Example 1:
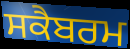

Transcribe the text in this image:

ਸਕੈਬਰਮ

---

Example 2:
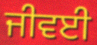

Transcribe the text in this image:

ਜੀਵਈ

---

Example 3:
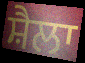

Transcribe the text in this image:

ਸ਼ੈਲਾ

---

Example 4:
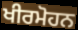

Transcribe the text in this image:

ਖੀਰਮੋਹਨ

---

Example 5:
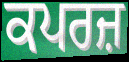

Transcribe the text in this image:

ਕਪਰਜ਼